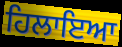
ਹਿਲਾਇਆ